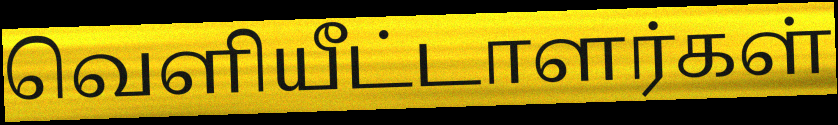
வெளியீட்டாளர்கள்